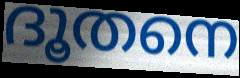
ദൂതനെ